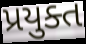
પ્રયુક્ત